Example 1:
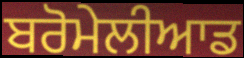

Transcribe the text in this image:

ਬਰੋਮੇਲੀਆਡ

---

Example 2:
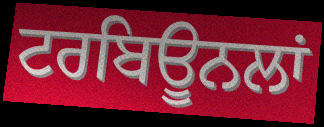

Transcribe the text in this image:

ਟਰਬਿਊਨਲਾਂ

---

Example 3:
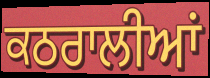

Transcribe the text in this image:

ਕਠਰਾਲੀਆਂ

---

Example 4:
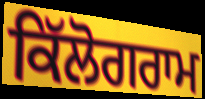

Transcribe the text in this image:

ਕਿੱਲੋਗਰਾਮ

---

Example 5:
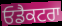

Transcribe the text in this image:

ਓਡੈਕਟਰਾ